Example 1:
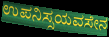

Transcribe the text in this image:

ಉಪನಿಸ್ಸಯವಸೇನ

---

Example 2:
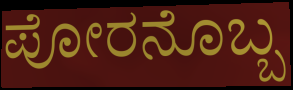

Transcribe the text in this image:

ಪೋರನೊಬ್ಬ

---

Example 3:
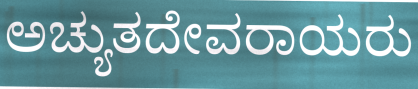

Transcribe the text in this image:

ಅಚ್ಯುತದೇವರಾಯರು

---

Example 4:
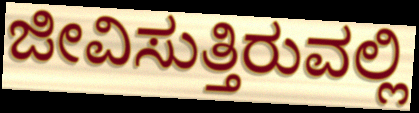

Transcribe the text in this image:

ಜೀವಿಸುತ್ತಿರುವಲ್ಲಿ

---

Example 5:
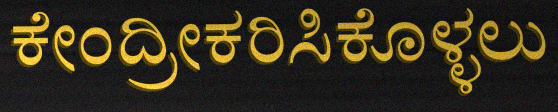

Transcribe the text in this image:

ಕೇಂದ್ರೀಕರಿಸಿಕೊಳ್ಳಲು